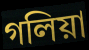
গলিয়া